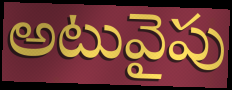
అటువైపు